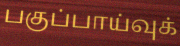
பகுப்பாய்வுக்